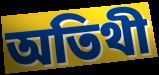
অতিথী